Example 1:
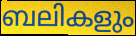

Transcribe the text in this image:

ബലികളും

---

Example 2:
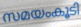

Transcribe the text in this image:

സമയംകൂടി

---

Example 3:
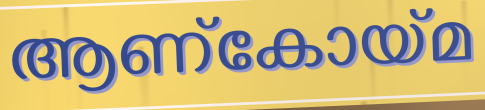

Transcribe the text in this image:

ആണ്കോയ്മ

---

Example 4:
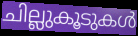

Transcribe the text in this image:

ചില്ലുകൂടുകൾ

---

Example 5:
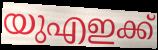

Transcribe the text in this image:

യുഎഇക്ക്